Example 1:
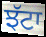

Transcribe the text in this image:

ਝੱਟਾ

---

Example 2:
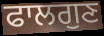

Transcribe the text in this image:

ਫਾਲਗੁਣ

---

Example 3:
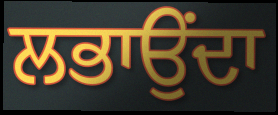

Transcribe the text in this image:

ਲਭਾਉਂਦਾ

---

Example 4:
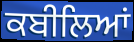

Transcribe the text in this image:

ਕਬੀਲਿਆਂ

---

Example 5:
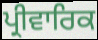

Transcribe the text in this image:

ਪ੍ਰੀਵਾਰਿਕ